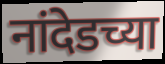
नांदेडच्या